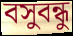
বসুবন্ধু